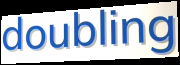
doubling